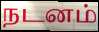
நடனம்